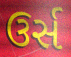
ઉર્સ